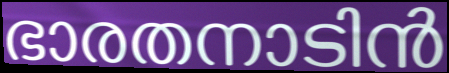
ഭാരതനാടിൻ